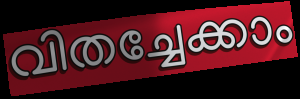
വിതച്ചേക്കാം